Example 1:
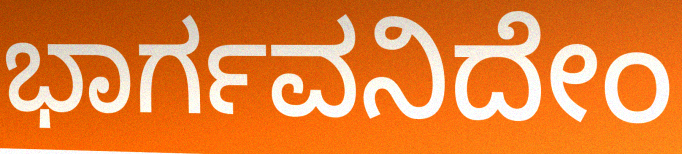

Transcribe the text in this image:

ಭಾರ್ಗವನಿದೇಂ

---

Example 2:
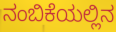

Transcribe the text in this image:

ನಂಬಿಕೆಯಲ್ಲಿನ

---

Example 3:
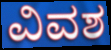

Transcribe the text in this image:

ವಿವಶ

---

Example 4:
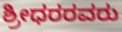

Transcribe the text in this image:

ಶ್ರೀಧರರವರು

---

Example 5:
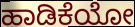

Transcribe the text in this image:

ಹಾಡಿಕೆಯೋ